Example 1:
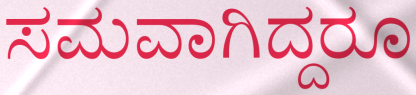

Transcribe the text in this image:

ಸಮವಾಗಿದ್ದರೂ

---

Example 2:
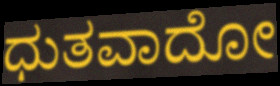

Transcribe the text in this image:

ಧುತವಾದೋ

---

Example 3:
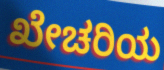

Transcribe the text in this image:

ಖೇಚರಿಯ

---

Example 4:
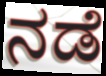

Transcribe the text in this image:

ನಡೆ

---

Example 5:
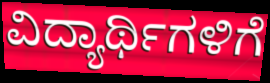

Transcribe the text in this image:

ವಿದ್ಯಾರ್ಥಿಗಳಿಗೆ